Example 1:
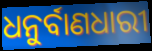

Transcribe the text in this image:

ଧନୁର୍ବାଣଧାରୀ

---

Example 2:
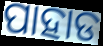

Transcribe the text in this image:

ପାହାଡ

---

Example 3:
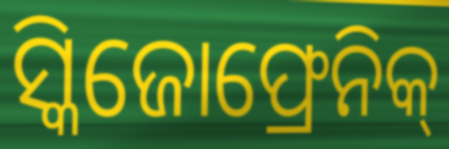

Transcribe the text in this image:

ସ୍କିଜୋଫ୍ରେନିକ୍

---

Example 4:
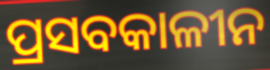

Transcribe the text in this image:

ପ୍ରସବକାଳୀନ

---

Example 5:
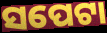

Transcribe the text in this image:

ସପେଟା